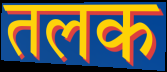
तलक